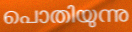
പൊതിയുന്നു